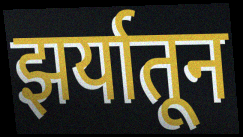
झर्यातून